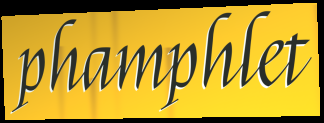
phamphlet